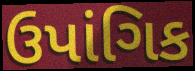
ઉપાંગિક